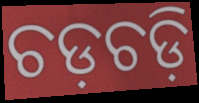
ଚଡ଼ଚଡ଼ି